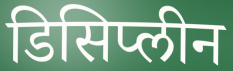
डिसिप्लीन